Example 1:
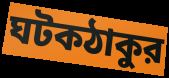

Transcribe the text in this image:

ঘটকঠাকুর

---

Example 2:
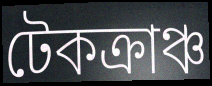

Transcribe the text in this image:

টেকক্রাঞ্চ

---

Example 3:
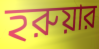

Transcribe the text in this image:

হরুয়ার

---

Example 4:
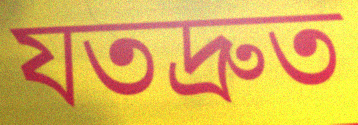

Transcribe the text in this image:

যতদ্রুত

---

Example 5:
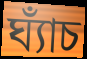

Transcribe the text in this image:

ঘ্যাঁচ